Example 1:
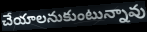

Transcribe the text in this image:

చేయాలనుకుంటున్నావు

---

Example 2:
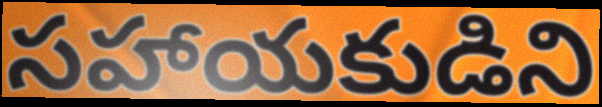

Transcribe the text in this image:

సహాయకుడిని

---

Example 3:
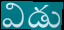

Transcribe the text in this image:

విడు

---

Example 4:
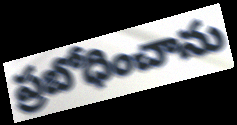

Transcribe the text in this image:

ప్రబోధించాను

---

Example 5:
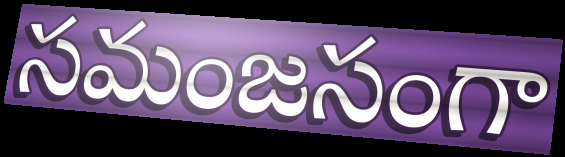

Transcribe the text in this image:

సమంజసంగా